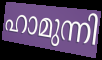
ഹാമുന്നി